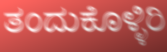
ತಂದುಕೊಳ್ಳಿರಿ